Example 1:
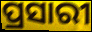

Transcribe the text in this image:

ପ୍ରସାରୀ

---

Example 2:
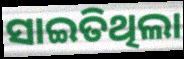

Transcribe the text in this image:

ସାଇତିଥିଲା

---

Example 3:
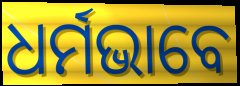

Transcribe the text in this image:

ଧର୍ମଭାବେ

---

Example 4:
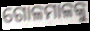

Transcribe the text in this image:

ଗୋଳମାଳକୁ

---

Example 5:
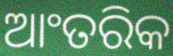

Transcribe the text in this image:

ଆଂତରିକ